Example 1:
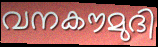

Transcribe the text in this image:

വനകൗമുദി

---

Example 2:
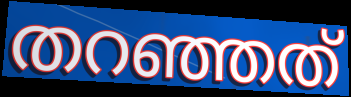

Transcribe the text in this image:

തറഞ്ഞത്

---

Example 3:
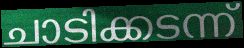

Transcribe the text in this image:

ചാടിക്കടന്ന്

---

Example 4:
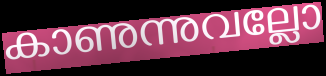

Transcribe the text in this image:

കാണുന്നുവല്ലോ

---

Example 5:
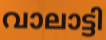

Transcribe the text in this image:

വാലാട്ടി